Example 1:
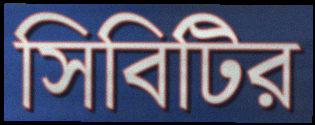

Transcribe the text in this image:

সিবিটির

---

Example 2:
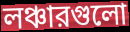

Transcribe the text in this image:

লঞ্চারগুলো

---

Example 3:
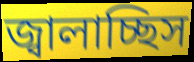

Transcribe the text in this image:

জ্বালাচ্ছিস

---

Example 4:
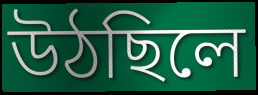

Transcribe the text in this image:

উঠছিলে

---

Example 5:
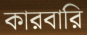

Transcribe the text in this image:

কারবারি